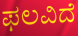
ಫಲವಿದೆ